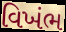
વિખંભ